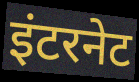
इंटरनेट